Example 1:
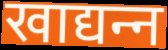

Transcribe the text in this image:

खाद्यन्न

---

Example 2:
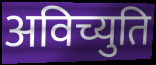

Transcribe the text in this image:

अविच्युति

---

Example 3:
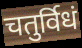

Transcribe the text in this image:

चतुर्विधं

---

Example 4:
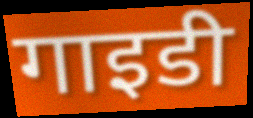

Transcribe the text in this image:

गाइडी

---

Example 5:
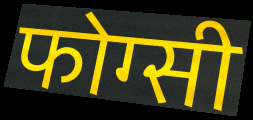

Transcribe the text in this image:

फोग्सी